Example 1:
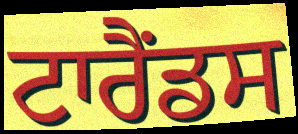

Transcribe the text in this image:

ਟਾਰੈਂਡਸ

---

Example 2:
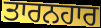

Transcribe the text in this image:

ਤਾਰਨਹਾਰ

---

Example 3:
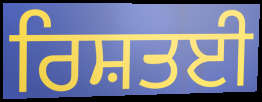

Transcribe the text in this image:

ਰਿਸ਼ਤਈ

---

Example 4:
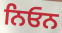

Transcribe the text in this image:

ਨਿਓਨ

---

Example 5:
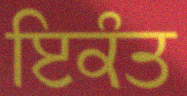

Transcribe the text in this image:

ਇਕੰਤ